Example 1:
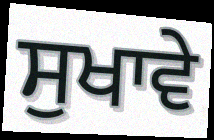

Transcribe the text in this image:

ਸੁਖਾਵੇ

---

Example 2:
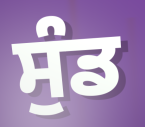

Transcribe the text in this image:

ਸੁੰਡ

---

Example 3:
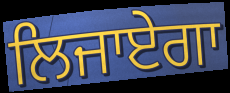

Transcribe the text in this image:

ਲਿਜਾਏਗਾ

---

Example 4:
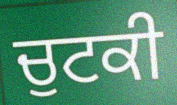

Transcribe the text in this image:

ਚੁਟਕੀ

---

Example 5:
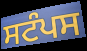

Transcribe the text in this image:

ਸਟੰਪਸ